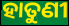
ହାତୁଣୀ